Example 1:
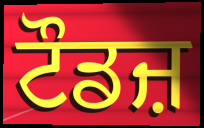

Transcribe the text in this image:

ਟੌਡਜ਼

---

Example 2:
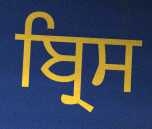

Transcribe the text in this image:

ਬ੍ਰਿਸ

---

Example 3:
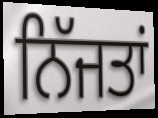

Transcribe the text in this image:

ਨਿੱਜਤਾਂ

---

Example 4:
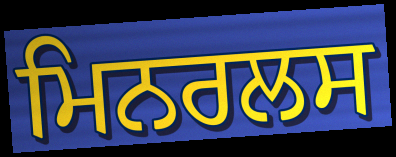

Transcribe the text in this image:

ਮਿਨਰਲਸ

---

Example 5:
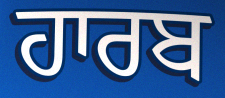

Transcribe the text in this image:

ਹਾਰਬ